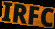
IRFC